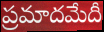
ప్రమాదమేదీ